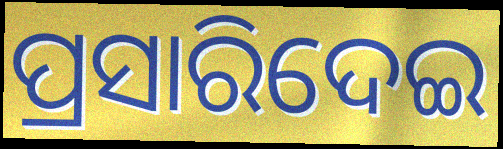
ପ୍ରସାରିଦେଇ